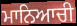
ਮਾਨਿਆਚੀ